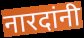
नारदांनी